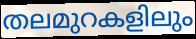
തലമുറകളിലും